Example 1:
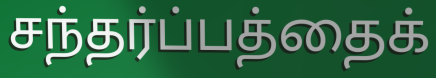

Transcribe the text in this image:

சந்தர்ப்பத்தைக்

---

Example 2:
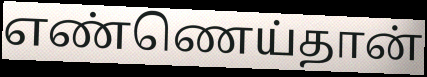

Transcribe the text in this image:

எண்ணெய்தான்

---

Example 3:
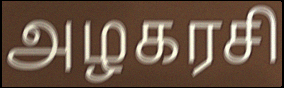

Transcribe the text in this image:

அழகரசி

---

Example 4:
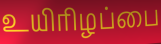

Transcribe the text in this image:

உயிரிழப்பை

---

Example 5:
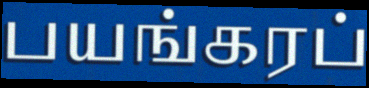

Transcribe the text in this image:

பயங்கரப்